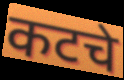
कटचे